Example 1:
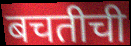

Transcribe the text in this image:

बचतीची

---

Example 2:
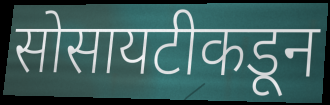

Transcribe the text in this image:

सोसायटीकडून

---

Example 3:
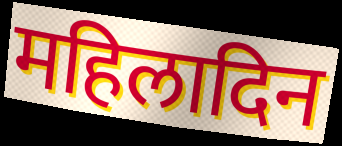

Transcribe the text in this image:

महिलादिन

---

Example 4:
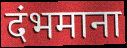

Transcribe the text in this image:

दंभमाना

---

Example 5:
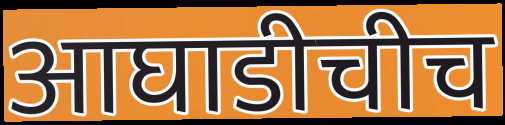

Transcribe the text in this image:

आघाडीचीच